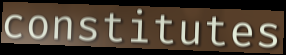
constitutes